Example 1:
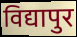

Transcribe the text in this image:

विद्यापुर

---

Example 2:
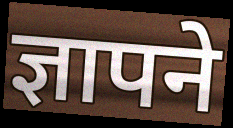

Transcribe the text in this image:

ज्ञापने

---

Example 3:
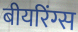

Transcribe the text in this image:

बीयरिंग्स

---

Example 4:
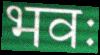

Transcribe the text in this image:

भवः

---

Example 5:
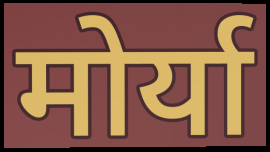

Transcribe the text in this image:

मोर्या